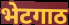
भेटगाठ